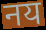
नय